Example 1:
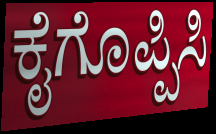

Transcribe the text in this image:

ಕೈಗೊಪ್ಪಿಸಿ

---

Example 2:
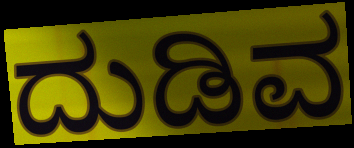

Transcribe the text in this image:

ದುಡಿವ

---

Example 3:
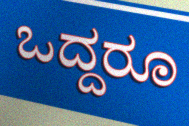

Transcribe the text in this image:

ಒದ್ದರೂ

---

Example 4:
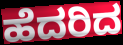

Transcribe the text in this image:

ಹೆದರಿದ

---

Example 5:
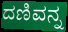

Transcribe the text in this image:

ದಣಿವನ್ನ